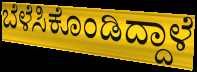
ಬೆಳೆಸಿಕೊಂಡಿದ್ದಾಳೆ